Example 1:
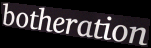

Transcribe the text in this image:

botheration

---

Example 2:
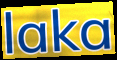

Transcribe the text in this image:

laka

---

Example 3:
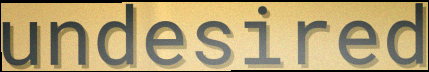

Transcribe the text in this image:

undesired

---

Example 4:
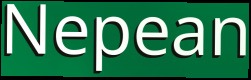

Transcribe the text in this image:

Nepean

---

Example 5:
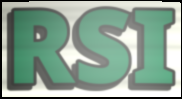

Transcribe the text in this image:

RSI